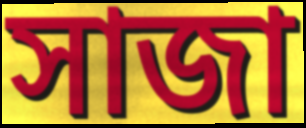
সাজা